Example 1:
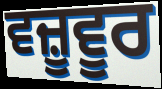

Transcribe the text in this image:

ਵਜ਼ੂਵੂਰ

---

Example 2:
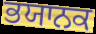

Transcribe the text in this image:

ਭਯਾਨਕ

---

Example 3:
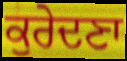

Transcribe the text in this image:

ਕੁਰੇਦਣਾ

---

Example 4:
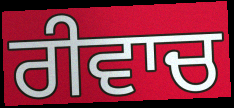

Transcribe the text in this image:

ਰੀਵਾਚ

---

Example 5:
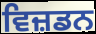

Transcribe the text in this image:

ਵਿਜ਼ਡਨ